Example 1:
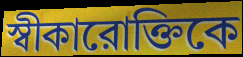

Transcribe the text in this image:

স্বীকারোক্তিকে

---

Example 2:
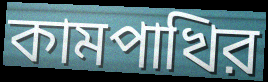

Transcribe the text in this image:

কামপাখির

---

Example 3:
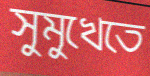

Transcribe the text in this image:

সুমুখেতে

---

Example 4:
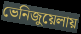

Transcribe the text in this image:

ভেনিজুয়েলায়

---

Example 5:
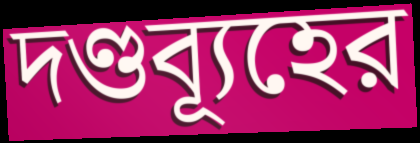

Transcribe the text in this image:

দণ্ডব্যূহের